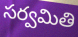
సర్వమితి